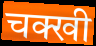
चक्खी